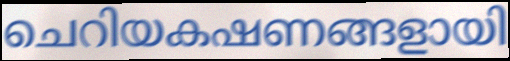
ചെറിയകഷണങ്ങളായി